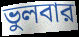
ভুলবার